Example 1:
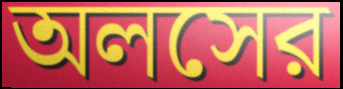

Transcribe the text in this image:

অলসের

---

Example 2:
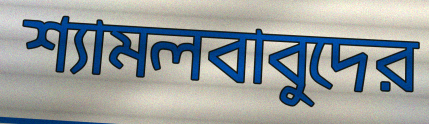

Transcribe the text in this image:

শ্যামলবাবুদের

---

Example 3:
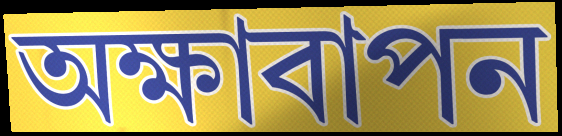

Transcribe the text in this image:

অক্ষাবাপন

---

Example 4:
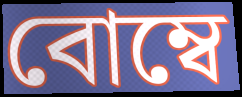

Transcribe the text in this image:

বোম্বে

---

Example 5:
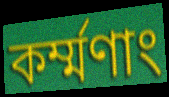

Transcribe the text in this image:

কর্ম্মণাং